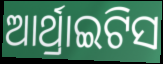
ଆର୍ଥ୍ରାଇଟିସ